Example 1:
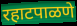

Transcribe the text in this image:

रहाटपाळणे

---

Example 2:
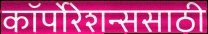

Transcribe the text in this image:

कॉर्पोरेशन्ससाठी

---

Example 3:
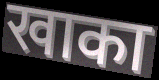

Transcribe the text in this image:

खाका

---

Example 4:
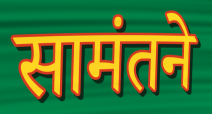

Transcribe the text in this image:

सामंतने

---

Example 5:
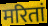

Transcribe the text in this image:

मरितां